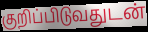
குறிப்பிடுவதுடன்